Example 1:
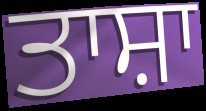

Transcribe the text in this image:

ਤਾਸ਼ਾ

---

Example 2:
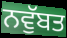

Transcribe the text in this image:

ਨਵੁੱਬਤ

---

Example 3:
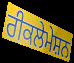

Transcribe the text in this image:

ਰੀਕਲੇਮੇਸ਼ਨ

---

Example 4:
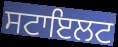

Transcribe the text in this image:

ਸਟਾਇਲਟ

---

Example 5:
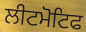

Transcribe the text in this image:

ਲੀਟਮੋਟਿਫ